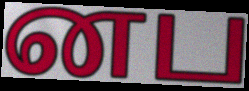
னப